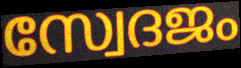
സ്വേദജം